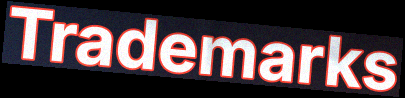
Trademarks